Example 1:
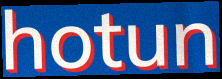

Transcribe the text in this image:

hotun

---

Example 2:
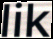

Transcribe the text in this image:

lik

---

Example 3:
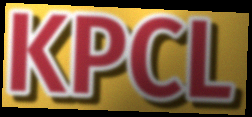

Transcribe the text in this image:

KPCL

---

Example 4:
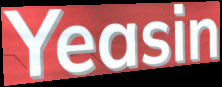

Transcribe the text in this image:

Yeasin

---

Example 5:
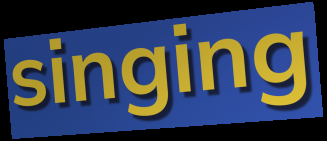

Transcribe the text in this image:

singing